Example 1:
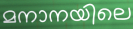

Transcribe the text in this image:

മനാനയിലെ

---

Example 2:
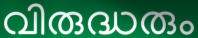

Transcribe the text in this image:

വിരുദ്ധരും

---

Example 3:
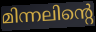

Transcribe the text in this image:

മിന്നലിന്റെ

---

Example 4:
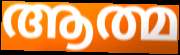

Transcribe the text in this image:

ആത്മ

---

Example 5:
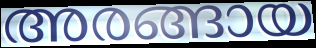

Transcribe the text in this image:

അരങ്ങായ